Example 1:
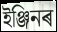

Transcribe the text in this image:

ইঞ্জিনৰ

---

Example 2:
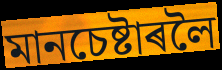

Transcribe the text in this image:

মানচেষ্টাৰলৈ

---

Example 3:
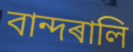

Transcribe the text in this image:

বান্দৰালি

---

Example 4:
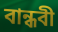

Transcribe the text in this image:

বান্ধবী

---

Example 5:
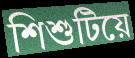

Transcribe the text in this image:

শিশুটিয়ে